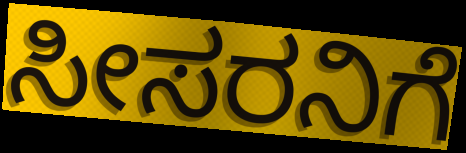
ಸೀಸರನಿಗೆ